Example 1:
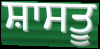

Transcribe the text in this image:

ਸ਼ਾਸਤੂ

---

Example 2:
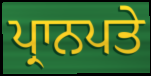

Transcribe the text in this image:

ਪ੍ਰਾਨਪਤੇ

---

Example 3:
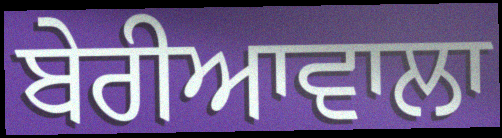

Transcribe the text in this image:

ਬੇਰੀਆਵਾਲਾ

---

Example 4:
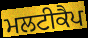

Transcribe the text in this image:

ਮਲਟੀਕੈਪ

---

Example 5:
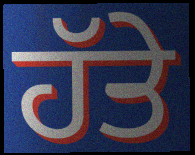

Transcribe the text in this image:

ਹੱਤੇ